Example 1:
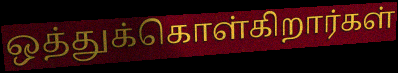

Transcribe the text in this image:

ஒத்துக்கொள்கிறார்கள்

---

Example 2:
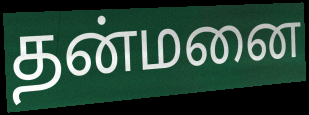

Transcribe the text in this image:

தன்மனை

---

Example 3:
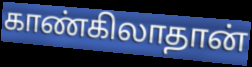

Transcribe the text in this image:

காண்கிலாதான்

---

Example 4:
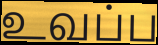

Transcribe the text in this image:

உவப்ப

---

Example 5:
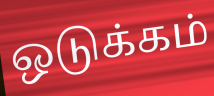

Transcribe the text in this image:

ஒடுக்கம்